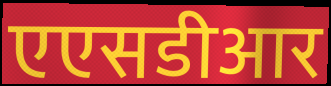
एएसडीआर